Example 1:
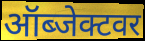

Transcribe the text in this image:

ऑब्जेक्टवर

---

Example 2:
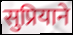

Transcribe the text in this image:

सुप्रियाने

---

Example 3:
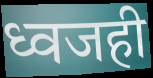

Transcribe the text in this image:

ध्वजही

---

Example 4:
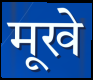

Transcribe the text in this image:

मूखे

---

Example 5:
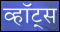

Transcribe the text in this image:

व्हॉट्‌स